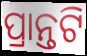
ପ୍ରାନ୍ତଟି